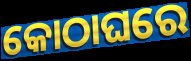
କୋଠାଘରେ